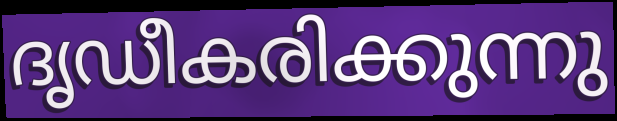
ദൃഡീകരിക്കുന്നു